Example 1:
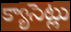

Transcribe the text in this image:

క్యాసెట్లు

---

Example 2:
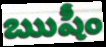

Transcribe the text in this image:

ఋషీం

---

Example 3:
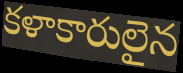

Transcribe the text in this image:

కళాకారులైన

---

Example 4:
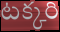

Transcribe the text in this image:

టక్కరి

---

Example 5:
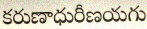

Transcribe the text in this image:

కరుణాధురీణయగు